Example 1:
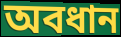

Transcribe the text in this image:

অবধান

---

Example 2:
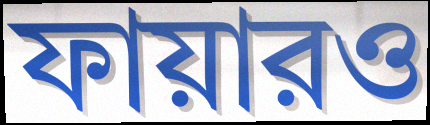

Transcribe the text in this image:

ফায়ারও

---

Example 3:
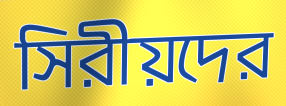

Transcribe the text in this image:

সিরীয়দের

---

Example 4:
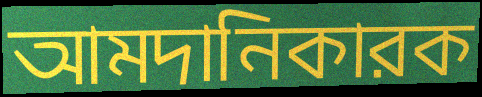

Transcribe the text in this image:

আমদানিকারক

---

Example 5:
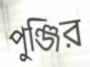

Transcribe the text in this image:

পুঞ্জির